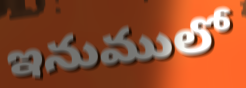
ఇనుములో